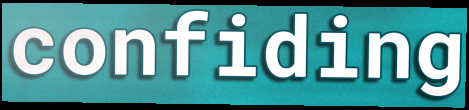
confiding